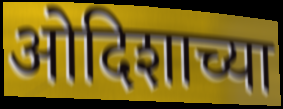
ओदिशाच्या